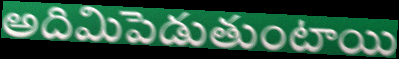
అదిమిపెడుతుంటాయి